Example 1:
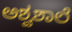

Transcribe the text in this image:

ಅಶ್ವಶಾಲೆ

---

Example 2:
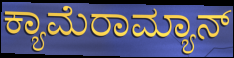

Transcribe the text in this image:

ಕ್ಯಾಮೆರಾಮ್ಯಾನ್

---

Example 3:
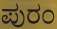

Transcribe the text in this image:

ಪುರಂ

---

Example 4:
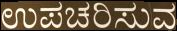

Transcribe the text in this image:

ಉಪಚರಿಸುವ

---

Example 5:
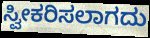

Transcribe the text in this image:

ಸ್ವೀಕರಿಸಲಾಗದು